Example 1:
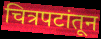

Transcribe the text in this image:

चित्रपटांतून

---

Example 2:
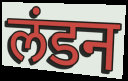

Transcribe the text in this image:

लंडन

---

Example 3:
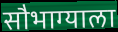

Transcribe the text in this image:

सौभाग्याला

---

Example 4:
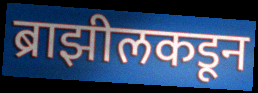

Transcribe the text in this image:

ब्राझीलकडून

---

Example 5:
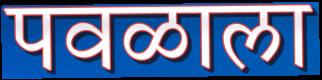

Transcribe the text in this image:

पवळाला